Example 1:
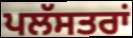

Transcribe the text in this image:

ਪਲੱਸਤਰਾਂ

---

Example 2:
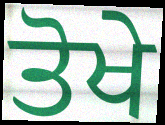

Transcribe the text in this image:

ਤੋਖੇ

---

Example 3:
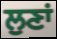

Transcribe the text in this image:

ਲੁਣਾਂ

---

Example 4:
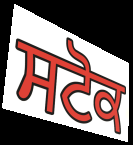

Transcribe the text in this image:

ਸਟੋਕ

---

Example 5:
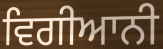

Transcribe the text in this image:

ਵਿਗੀਆਨੀ